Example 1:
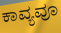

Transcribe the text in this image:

ಕಾವ್ಯವೂ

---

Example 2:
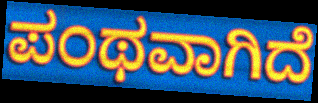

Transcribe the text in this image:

ಪಂಥವಾಗಿದೆ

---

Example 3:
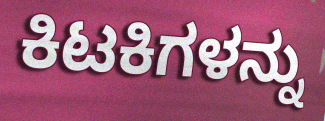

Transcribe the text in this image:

ಕಿಟಕಿಗಳನ್ನು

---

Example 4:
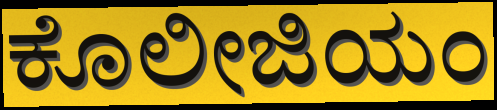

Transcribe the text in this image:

ಕೊಲೀಜಿಯಂ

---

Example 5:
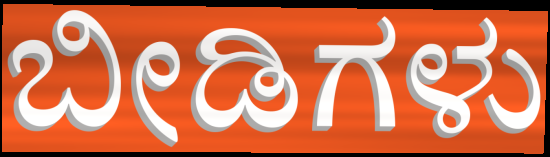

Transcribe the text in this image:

ಬೀಡಿಗಳು